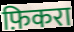
फ़िकरा